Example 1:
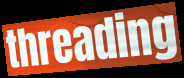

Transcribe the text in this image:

threading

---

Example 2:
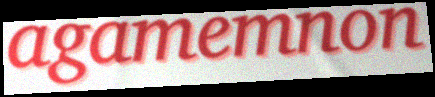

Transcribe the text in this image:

agamemnon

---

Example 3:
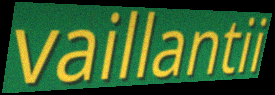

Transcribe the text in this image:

vaillantii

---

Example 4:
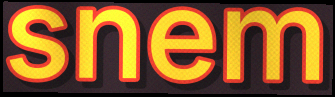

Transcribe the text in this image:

snem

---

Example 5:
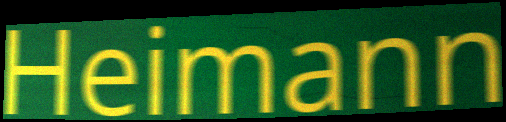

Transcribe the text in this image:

Heimann